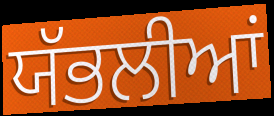
ਯੱਭਲੀਆਂ